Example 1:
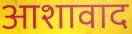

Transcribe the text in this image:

आशावाद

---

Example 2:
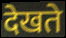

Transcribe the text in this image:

देखते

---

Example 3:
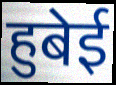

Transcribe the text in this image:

हुबेई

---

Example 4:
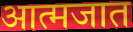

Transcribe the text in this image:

आत्मजात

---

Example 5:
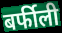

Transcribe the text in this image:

बर्फीली